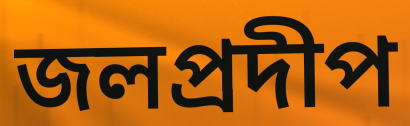
জলপ্রদীপ